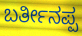
ಬರ್ತೀನಪ್ಪ